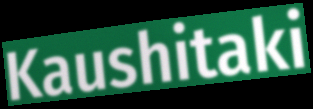
Kaushitaki